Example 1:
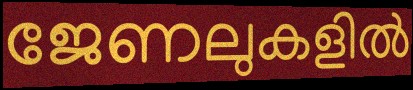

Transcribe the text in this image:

ജേണലുകളിൽ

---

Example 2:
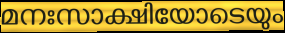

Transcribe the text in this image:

മനഃസാക്ഷിയോടെയും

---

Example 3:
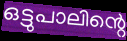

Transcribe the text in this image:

ഒട്ടുപാലിന്റെ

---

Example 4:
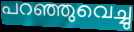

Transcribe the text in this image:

പറഞ്ഞുവെച്ചു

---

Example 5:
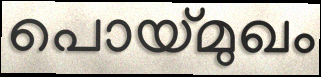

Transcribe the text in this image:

പൊയ്മുഖം